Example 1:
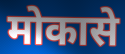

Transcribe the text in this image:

मोकासे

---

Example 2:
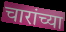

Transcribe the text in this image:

चारांच्या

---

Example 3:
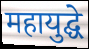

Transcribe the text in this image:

महायुद्घे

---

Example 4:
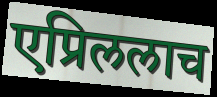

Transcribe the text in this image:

एप्रिललाच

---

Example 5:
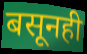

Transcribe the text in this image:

बसूनही